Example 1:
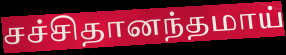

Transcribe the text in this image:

சச்சிதானந்தமாய்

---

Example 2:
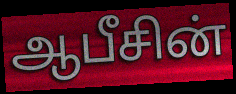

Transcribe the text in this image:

ஆபீசின்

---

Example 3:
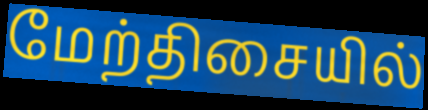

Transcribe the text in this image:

மேற்திசையில்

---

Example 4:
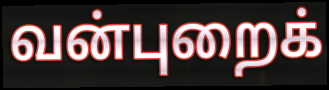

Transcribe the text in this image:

வன்புறைக்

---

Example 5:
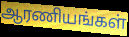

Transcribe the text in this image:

ஆரணியங்கள்